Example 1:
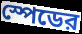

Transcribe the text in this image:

স্পেডের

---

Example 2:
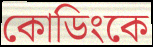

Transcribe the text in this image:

কোডিংকে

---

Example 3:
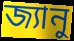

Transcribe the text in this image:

জ্যানু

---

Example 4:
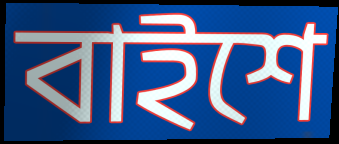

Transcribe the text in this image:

বাইশে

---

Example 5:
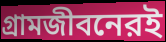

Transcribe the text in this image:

গ্রামজীবনেরই